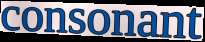
consonant